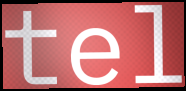
tel